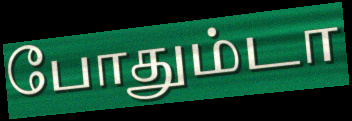
போதும்டா